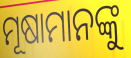
ମୂଷାମାନଙ୍କୁ